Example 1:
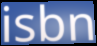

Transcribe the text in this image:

isbn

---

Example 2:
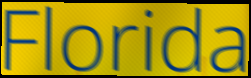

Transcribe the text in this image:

Florida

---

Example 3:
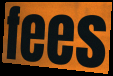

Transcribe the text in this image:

fees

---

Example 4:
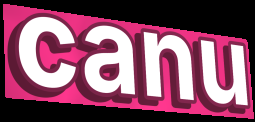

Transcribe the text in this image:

canu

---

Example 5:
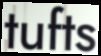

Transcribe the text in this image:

tufts